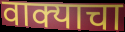
वाक्याचा